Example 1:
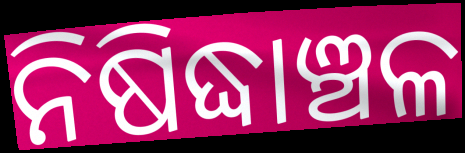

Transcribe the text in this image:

ନିଷିଦ୍ଧାଞ୍ଚଳ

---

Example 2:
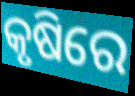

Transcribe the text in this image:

କୃଷିରେ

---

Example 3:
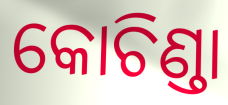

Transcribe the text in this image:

କୋଚିଣ୍ଡା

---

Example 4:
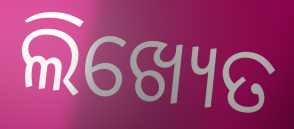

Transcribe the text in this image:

ଲିଖ୍ଯେତ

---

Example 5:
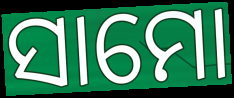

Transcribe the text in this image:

ସାମୋ